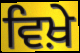
ਵਿਖ਼ੇ